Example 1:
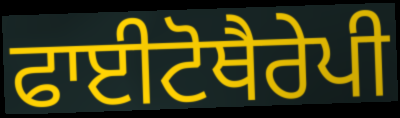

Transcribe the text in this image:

ਫਾਈਟੋਥੈਰੇਪੀ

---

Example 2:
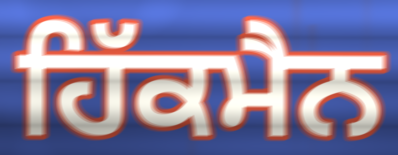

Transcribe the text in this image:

ਹਿੱਕਮੈਨ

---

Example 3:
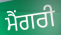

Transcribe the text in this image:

ਮੈਂਗਰੀ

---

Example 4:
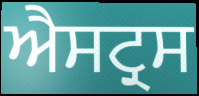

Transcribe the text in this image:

ਐਸਟ੍ਰਸ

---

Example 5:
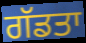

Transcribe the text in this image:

ਗੱਡਤਾ